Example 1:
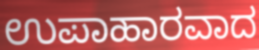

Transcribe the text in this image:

ಉಪಾಹಾರವಾದ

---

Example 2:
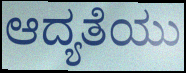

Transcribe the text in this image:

ಆದ್ಯತೆಯು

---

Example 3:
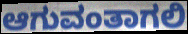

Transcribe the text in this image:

ಆಗುವಂತಾಗಲಿ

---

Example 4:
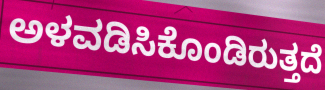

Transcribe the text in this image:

ಅಳವಡಿಸಿಕೊಂಡಿರುತ್ತದೆ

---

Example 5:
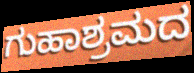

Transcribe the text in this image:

ಗುಹಾಶ್ರಮದ